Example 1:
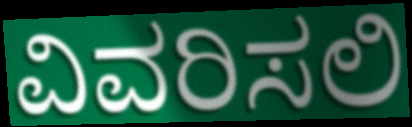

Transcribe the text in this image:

ವಿವರಿಸಲಿ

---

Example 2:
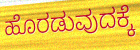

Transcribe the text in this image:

ಹೊರಡುವುದಕ್ಕೆ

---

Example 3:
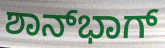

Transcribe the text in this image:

ಶಾನ್‍ಭಾಗ್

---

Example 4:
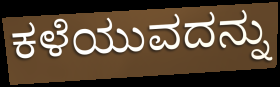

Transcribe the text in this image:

ಕಳೆಯುವದನ್ನು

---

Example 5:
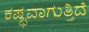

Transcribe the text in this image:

ಕಷ್ಟವಾಗುತ್ತಿದೆ